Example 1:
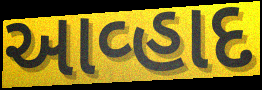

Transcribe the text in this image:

આવ્હાદ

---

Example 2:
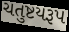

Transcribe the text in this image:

ચતુષ્ટયરૂપ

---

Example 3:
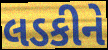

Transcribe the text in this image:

લડકીને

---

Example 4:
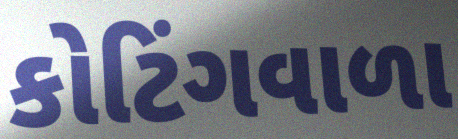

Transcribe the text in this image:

કોટિંગવાળા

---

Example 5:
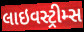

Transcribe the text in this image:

લાઇવસ્ટ્રીમ્સ